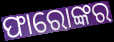
ଫାରୋଙ୍କର